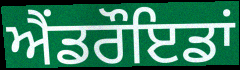
ਐਂਡਰੌਇਡਾਂ